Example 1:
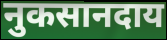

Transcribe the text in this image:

नुकसानदाय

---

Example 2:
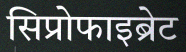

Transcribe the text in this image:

सिप्रोफाइब्रेट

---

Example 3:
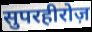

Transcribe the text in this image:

सुपरहीरोज़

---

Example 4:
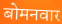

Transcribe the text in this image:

बोमनवार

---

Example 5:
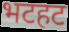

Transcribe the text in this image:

भटहट